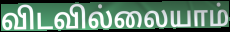
விடவில்லையாம்